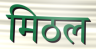
मिठल